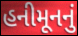
હનીમૂનનું